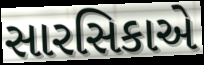
સારસિકાએ